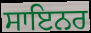
ਸਾਇਨਰ